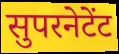
सुपरनेटेंट